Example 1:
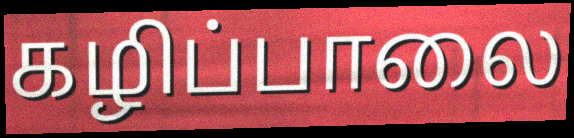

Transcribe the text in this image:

கழிப்பாலை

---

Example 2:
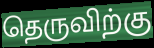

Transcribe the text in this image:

தெருவிற்கு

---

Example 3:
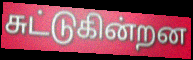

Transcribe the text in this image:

சுட்டுகின்றன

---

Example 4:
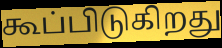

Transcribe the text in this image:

கூப்பிடுகிறது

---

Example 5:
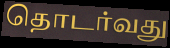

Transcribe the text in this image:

தொடர்வது